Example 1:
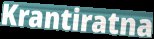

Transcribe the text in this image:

Krantiratna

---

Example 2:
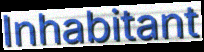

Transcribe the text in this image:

Inhabitant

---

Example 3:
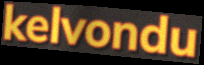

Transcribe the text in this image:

kelvondu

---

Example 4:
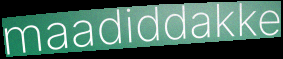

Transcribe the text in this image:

maadiddakke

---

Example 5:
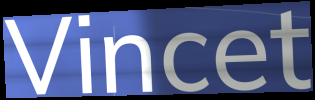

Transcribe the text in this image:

Vincet